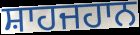
ਸ਼ਾਹਜਹਾਨ